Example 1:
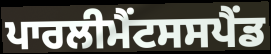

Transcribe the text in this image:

ਪਾਰਲੀਮੈਂਟਸਸਪੈਂਡ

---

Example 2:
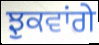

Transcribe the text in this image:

ਝੁਕਵਾਂਗੇ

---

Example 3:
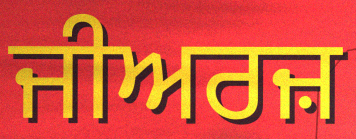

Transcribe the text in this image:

ਜੀਅਰਜ਼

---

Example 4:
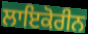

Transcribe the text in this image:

ਲਾਇਕੋਰੀਨ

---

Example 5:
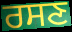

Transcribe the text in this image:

ਰਸਣ